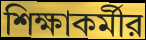
শিক্ষাকর্মীর